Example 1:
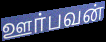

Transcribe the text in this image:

ஊர்பவன்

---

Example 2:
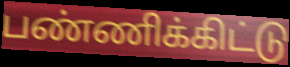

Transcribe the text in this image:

பண்ணிக்கிட்டு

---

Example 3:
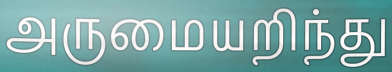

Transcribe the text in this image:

அருமையறிந்து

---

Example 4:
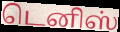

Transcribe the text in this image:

டெனிஸ்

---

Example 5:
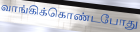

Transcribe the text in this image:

வாங்கிக்கொண்டபோது